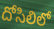
దోసిలిలో